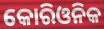
କୋରିଓନିକ